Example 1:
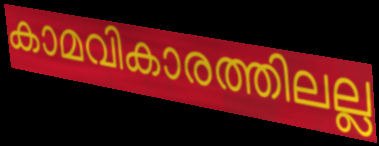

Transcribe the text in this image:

കാമവികാരത്തിലല്ല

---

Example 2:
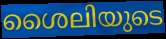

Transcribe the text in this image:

ശൈലിയുടെ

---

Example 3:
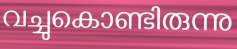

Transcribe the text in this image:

വച്ചുകൊണ്ടിരുന്നു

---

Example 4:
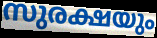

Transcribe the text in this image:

സുരക്ഷയും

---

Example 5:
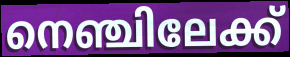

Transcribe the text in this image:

നെഞ്ചിലേക്ക്